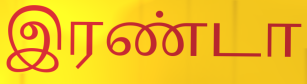
இரண்டா